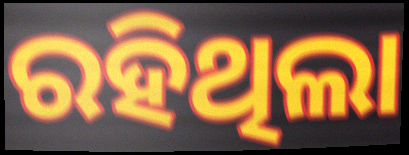
ରହିଥିଲା